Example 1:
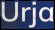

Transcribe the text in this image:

Urja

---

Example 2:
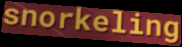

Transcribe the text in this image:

snorkeling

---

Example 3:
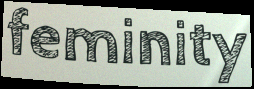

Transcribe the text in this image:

feminity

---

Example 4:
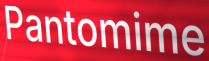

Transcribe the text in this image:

Pantomime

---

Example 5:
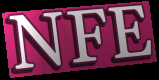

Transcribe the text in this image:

NFE